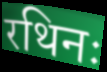
रथिनः